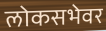
लोकसभेवर